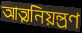
আত্মনিয়ন্ত্রণ